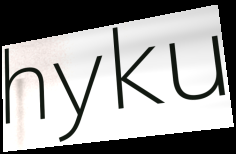
hyku